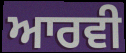
ਆਰਵੀ